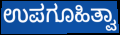
ಉಪಗೂಹಿತ್ವಾ